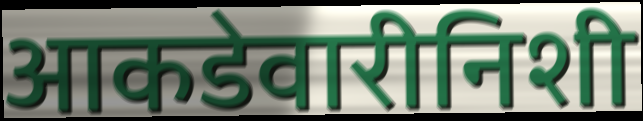
आकडेवारीनिशी